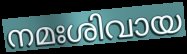
നമഃശിവായ